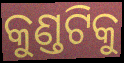
କୁଣ୍ଡଟିକୁ